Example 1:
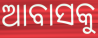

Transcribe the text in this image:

ଆବାସକୁ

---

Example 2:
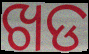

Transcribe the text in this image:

ଖଡ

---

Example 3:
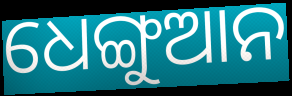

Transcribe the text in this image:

ଧେଙ୍ଗୁଆନ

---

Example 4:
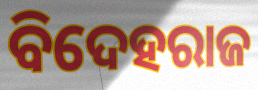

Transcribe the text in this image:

ବିଦେହରାଜ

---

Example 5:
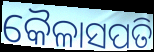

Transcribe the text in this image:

କୈଳାସପତି